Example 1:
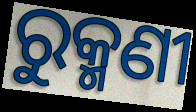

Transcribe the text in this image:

ରୁକ୍ମଣୀ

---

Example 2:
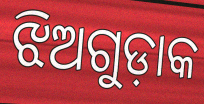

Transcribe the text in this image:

ଝିଅଗୁଡ଼ାକ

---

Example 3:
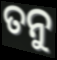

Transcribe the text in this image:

ତନୁ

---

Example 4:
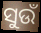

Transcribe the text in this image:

ସୁଉଁ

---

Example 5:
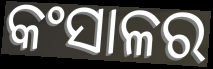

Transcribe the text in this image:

କଂସାଳର